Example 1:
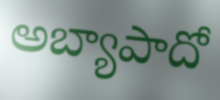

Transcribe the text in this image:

అబ్యాపాదో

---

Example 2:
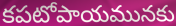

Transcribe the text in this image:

కపటోపాయమునకు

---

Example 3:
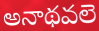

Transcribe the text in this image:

అనాథవలె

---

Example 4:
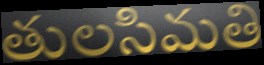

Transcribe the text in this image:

తులసిమతి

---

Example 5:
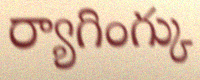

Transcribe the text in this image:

ర్యాగింగ్కు